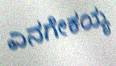
ಎನಗೇಕಯ್ಯ